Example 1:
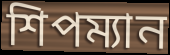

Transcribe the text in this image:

শিপম্যান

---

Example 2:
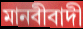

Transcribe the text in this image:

মানবীবাদী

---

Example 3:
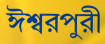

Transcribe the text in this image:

ঈশ্বরপুরী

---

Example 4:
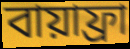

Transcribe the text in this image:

বায়াফ্রা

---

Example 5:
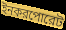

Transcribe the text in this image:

ইনকরপোরেট